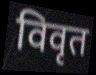
विवृत